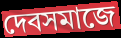
দেবসমাজে